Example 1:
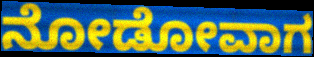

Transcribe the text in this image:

ನೋಡೋವಾಗ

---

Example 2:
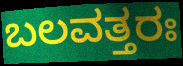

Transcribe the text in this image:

ಬಲವತ್ತರಃ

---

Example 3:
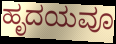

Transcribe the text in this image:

ಹೃದಯವೂ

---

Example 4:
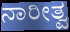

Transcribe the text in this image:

ನಾರೀತ್ವ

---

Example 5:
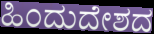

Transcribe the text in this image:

ಹಿಂದುದೇಶದ